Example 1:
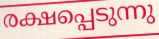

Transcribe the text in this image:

രക്ഷപ്പെടുന്നു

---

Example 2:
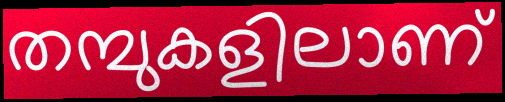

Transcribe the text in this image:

തമ്പുകളിലാണ്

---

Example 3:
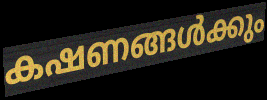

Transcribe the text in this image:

കഷണങ്ങൾക്കും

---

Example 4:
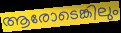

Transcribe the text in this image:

ആരോടെങ്കിലും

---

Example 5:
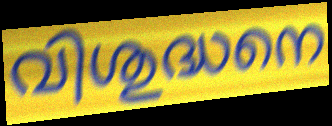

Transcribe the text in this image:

വിശുദ്ധനെ